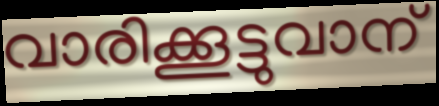
വാരിക്കൂട്ടുവാന്